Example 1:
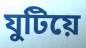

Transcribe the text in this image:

যুটিয়ে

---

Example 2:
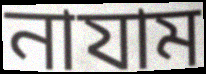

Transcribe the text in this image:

নাযাম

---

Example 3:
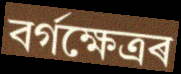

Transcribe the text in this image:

বৰ্গক্ষেত্ৰৰ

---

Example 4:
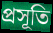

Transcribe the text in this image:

প্ৰসূতি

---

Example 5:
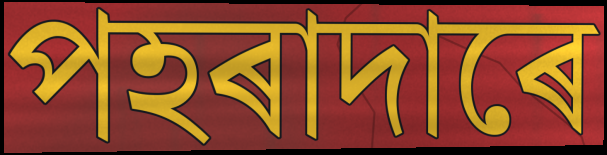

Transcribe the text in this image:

পহৰাদাৰে